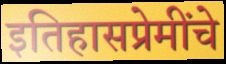
इतिहासप्रेमींचे